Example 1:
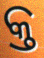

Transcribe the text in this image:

କ୍ତ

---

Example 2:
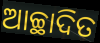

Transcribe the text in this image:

ଆଚ୍ଛାଦିତ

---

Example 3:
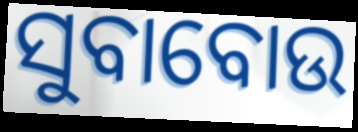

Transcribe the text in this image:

ସୁବାବୋଉ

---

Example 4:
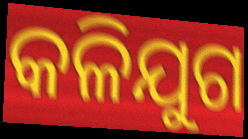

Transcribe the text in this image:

କଳିଯୁଗ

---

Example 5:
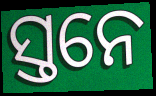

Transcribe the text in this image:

ସ୍ତନେ